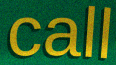
call